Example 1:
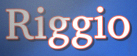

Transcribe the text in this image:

Riggio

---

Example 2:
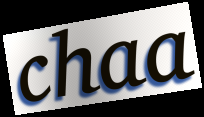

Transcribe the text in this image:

chaa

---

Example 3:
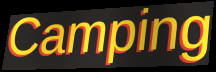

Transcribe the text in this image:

Camping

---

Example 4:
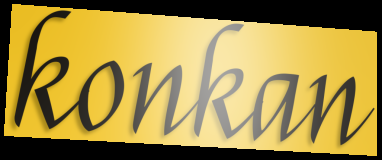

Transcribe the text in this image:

konkan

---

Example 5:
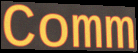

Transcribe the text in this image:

Comm